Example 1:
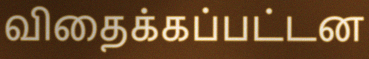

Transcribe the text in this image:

விதைக்கப்பட்டன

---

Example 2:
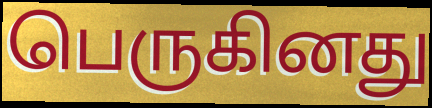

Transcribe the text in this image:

பெருகினது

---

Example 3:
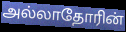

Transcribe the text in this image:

அல்லாதோரின்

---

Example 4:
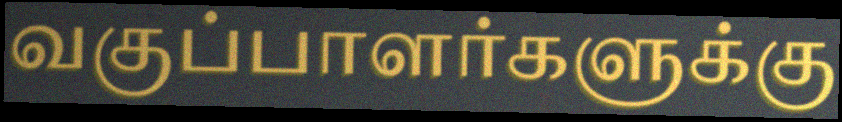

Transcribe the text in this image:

வகுப்பாளர்களுக்கு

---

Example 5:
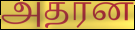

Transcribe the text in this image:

அதரன